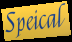
Speical